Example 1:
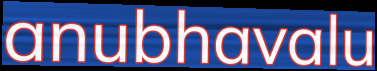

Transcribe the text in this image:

anubhavalu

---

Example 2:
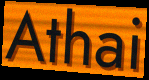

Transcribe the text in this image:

Athai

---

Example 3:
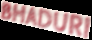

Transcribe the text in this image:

BHADURI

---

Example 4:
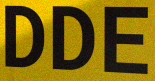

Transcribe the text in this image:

DDE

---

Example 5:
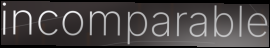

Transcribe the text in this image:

incomparable